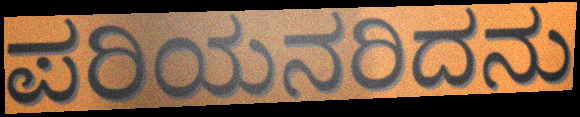
ಪರಿಯನರಿದನು